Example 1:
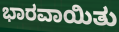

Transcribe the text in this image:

ಭಾರವಾಯಿತು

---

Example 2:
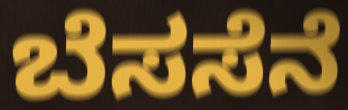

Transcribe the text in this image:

ಬೆಸಸೆನೆ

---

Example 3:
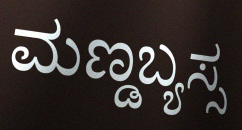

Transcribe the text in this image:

ಮಣ್ಡಬ್ಯಸ್ಸ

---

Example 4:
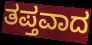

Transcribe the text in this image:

ತಪ್ತವಾದ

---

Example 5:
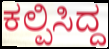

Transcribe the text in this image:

ಕಲ್ಪಿಸಿದ್ದ